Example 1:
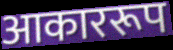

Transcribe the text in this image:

आकाररूप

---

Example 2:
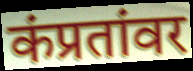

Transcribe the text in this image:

कंप्रतांवर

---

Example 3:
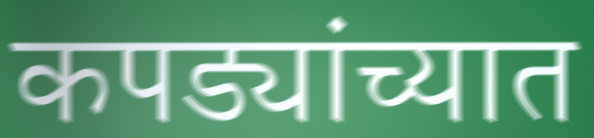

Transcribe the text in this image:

कपड्यांच्यात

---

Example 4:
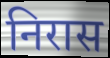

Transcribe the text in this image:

निरास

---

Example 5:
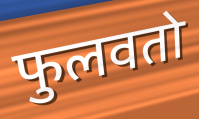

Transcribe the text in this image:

फुलवतो